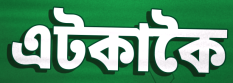
এটকাকৈ